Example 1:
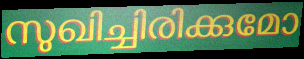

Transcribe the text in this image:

സുഖിച്ചിരിക്കുമോ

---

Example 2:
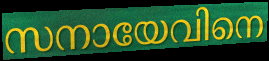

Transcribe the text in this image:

സനായേവിനെ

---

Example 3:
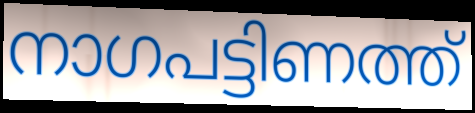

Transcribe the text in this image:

നാഗപട്ടിണത്ത്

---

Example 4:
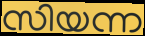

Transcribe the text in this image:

സിയന്ന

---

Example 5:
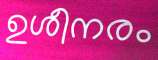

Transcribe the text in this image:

ഉശീനരം